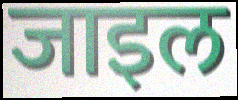
जाइल